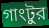
গাংটুর